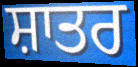
ਸ਼ਾਤਰ